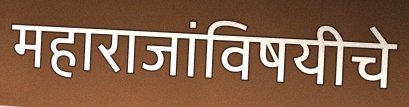
महाराजांविषयीचे